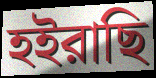
হইরাছি